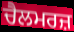
ਚੈਲਮਰਜ਼